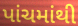
પાંચમાંથી